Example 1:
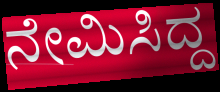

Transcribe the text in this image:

ನೇಮಿಸಿದ್ದ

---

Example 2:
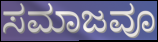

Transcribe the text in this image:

ಸಮಾಜವೂ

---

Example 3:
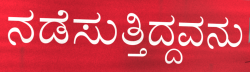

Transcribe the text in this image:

ನಡೆಸುತ್ತಿದ್ದವನು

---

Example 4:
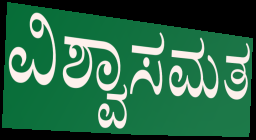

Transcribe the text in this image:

ವಿಶ್ವಾಸಮತ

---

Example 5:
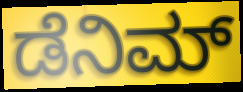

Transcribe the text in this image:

ಡೆನಿಮ್